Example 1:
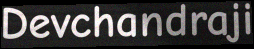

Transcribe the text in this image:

Devchandraji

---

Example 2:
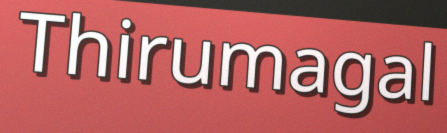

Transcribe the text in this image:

Thirumagal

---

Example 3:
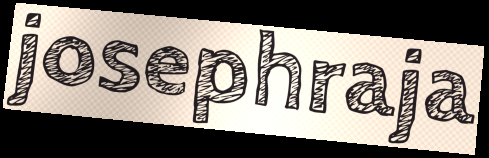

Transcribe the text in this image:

josephraja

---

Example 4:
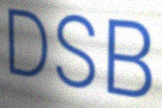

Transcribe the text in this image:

DSB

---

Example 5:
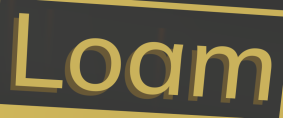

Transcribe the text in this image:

Loam